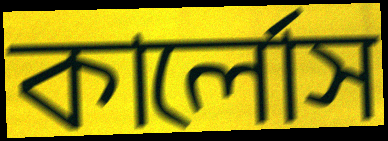
কার্লোস